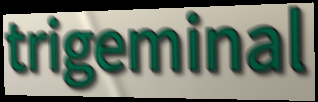
trigeminal